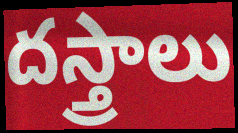
దస్త్రాలు